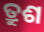
ତ୍ରୁଶ